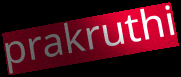
prakruthi